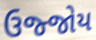
ઉજ્જોય